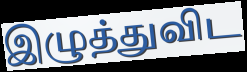
இழுத்துவிட